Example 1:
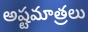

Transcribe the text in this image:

అష్టమాత్రలు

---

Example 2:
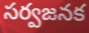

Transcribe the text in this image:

సర్వజనక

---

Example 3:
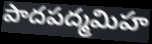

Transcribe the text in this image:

పాదపద్మమిహ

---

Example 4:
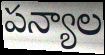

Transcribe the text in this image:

పన్యాల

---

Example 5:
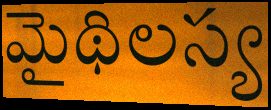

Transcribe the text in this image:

మైథిలస్య